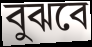
বুঝবে